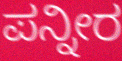
ಪನ್ನೀರ